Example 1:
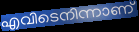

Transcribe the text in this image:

എവിടെനിന്നാണ്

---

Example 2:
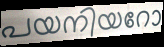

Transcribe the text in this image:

പയനിയറോ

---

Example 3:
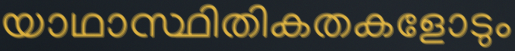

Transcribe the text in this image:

യാഥാസ്ഥിതികതകളോടും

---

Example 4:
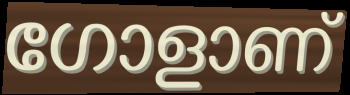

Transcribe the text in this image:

ഗോളാണ്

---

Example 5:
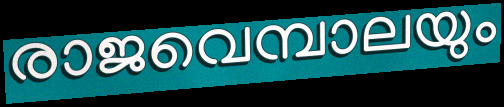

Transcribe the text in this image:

രാജവെമ്പാലയും